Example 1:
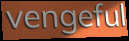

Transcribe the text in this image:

vengeful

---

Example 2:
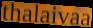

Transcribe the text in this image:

thalaivaa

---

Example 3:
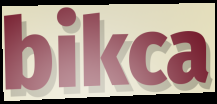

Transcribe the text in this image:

bikca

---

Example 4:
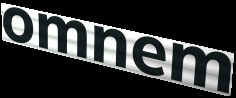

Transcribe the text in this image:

omnem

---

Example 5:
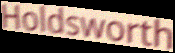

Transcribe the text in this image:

Holdsworth